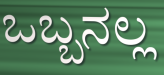
ಒಬ್ಬನಲ್ಲ